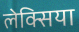
लेक्सिया